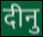
दीनु